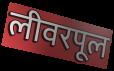
लीवरपूल